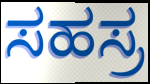
ಸಹಸ್ರ